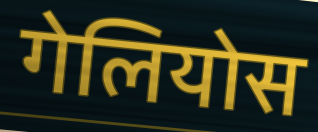
गेलियोस